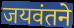
जयवंतने